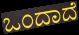
ಒಂದಾದೆ